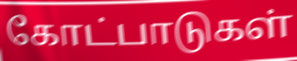
கோட்பாடுகள்